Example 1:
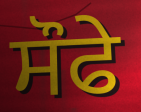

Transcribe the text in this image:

ਸੌਫੇ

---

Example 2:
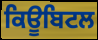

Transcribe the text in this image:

ਕਿਊਬਿਟਲ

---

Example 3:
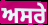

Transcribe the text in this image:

ਅਸਰੇ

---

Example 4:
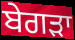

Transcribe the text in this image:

ਬੇਗੜਾ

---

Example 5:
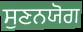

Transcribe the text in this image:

ਸੁਣਨਯੋਗ